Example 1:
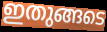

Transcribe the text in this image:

ഇതുങ്ങടെ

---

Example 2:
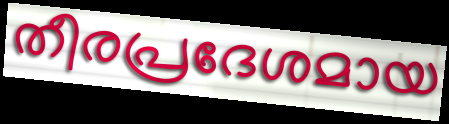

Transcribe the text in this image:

തീരപ്രദേശമായ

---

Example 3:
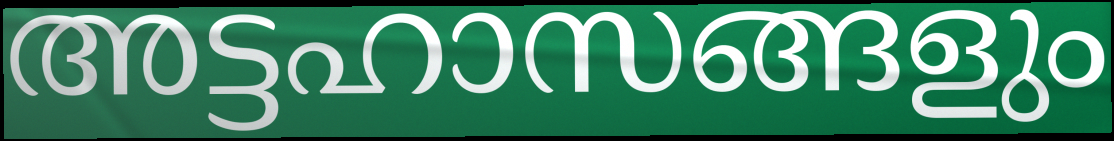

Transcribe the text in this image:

അട്ടഹാസങ്ങളും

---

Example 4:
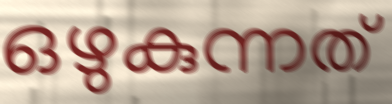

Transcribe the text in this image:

ഒഴുകുന്നത്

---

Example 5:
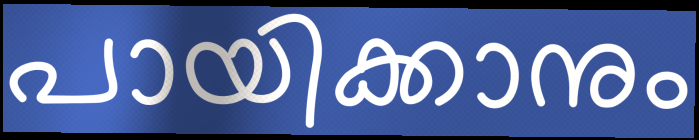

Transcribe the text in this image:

പായിക്കാനും